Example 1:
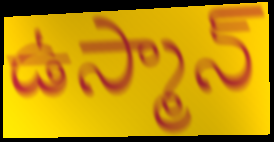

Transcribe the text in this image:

ఉస్మాన్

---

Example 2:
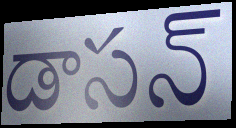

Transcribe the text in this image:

డాసన్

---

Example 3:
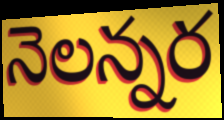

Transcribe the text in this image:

నెలన్నర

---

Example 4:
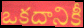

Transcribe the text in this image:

ఒకదానికీ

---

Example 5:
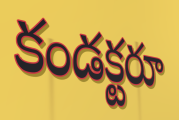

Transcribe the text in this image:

కండక్టరూ